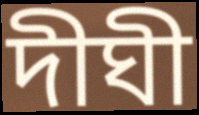
দীঘী